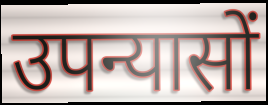
उपन्यासों